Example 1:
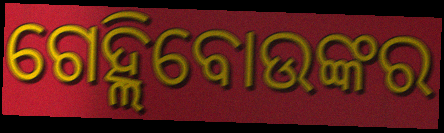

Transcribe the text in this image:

ଗେହ୍ଲିବୋଉଙ୍କର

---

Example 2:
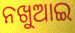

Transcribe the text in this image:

ନଖୁଆଇ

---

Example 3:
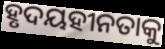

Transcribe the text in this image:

ହୃଦୟହୀନତାକୁ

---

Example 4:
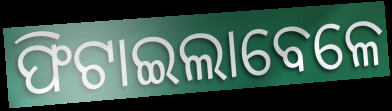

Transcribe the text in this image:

ଫିଟାଇଲାବେଳେ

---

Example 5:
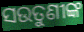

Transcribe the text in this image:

ସଉତୁଣୀଙ୍କ